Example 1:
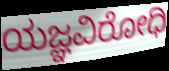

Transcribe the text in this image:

ಯಜ್ಞವಿರೋಧಿ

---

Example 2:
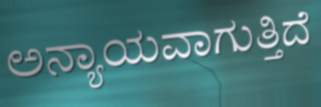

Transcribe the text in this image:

ಅನ್ಯಾಯವಾಗುತ್ತಿದೆ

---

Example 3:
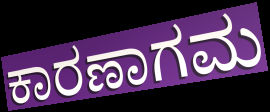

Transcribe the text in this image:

ಕಾರಣಾಗಮ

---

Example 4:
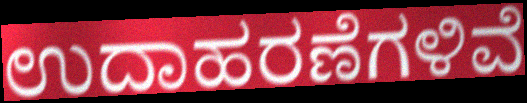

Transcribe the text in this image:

ಉದಾಹರಣೆಗಳಿವೆ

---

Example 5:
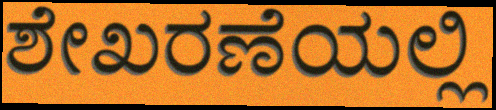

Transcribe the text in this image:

ಶೇಖರಣೆಯಲ್ಲಿ